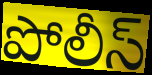
పోలీస్